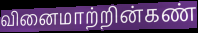
வினைமாற்றின்கண்